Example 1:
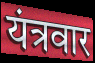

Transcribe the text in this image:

यंत्रवार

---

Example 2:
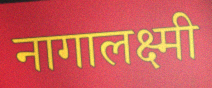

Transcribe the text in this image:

नागालक्ष्मी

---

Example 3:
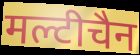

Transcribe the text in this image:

मल्टीचैन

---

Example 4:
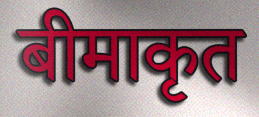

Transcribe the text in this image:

बीमाकृत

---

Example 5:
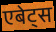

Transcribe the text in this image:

एबेट्स